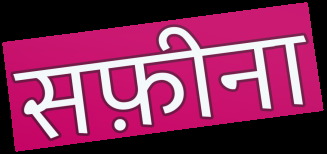
सफ़ीना